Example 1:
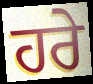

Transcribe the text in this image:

ਹਰੇ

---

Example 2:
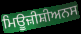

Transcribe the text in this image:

ਮਿਊਜ਼ੀਸ਼ੀਅਨਸ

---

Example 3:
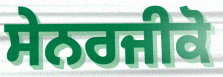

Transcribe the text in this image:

ਸੇਨਰਜੀਕੋ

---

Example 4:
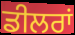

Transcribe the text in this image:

ਡੀਲਰਾਂ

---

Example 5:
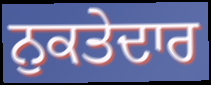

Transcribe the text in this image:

ਨੁਕਤੇਦਾਰ